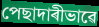
পেছাদাৰীভাৱে